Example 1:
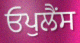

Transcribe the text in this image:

ਓਪੁਲੈਂਸ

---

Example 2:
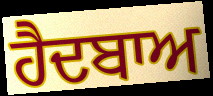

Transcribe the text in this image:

ਹੈਦਬਾਅ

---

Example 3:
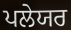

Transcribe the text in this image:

ਪਲੇਯਰ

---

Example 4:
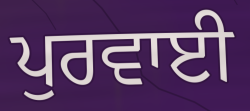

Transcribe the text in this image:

ਪੁਰਵਾਈ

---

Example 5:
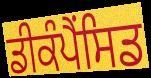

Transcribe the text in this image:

ਡੀਕੰਪੈਂਸਿਡ